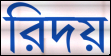
রিদয়